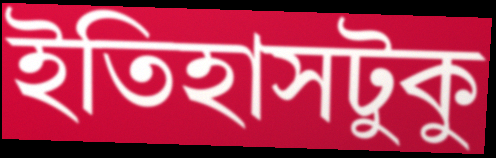
ইতিহাসটুকু